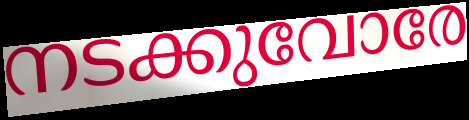
നടക്കുവോരേ